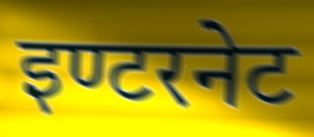
इण्टरनेट